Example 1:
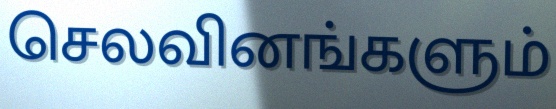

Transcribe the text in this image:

செலவினங்களும்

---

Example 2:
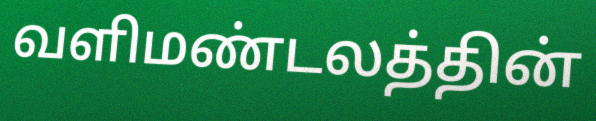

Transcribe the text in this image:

வளிமண்டலத்தின்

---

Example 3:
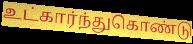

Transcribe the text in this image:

உட்கார்ந்துகொண்டு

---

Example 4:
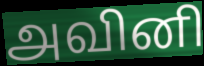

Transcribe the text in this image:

அவினி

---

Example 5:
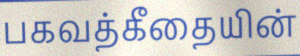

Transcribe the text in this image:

பகவத்கீதையின்